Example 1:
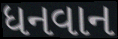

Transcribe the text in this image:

ધનવાન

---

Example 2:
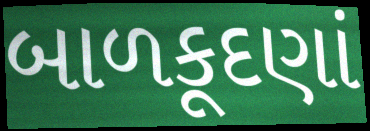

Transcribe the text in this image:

બાળકૂદણાં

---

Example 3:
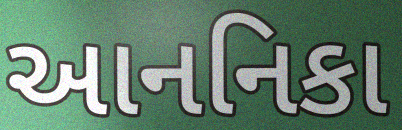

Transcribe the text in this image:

આનનિકા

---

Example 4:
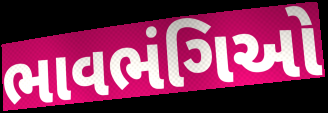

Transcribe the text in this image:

ભાવભંગિઓ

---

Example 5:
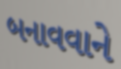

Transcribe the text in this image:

બનાવવાને